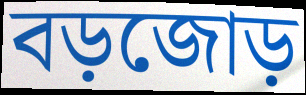
বড়জোড়